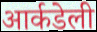
आर्कडेली